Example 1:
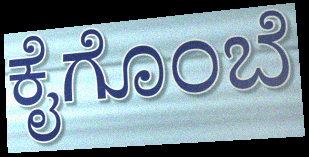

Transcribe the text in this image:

ಕೈಗೊಂಬೆ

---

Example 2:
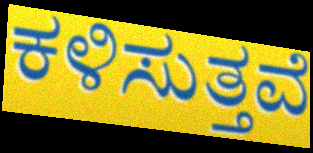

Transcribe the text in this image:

ಕಳಿಸುತ್ತವೆ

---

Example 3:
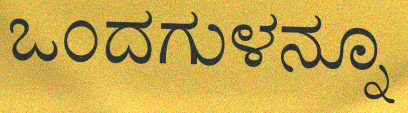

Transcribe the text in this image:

ಒಂದಗುಳನ್ನೂ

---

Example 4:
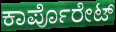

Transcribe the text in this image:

ಕಾರ್ಪೊರೇಟ್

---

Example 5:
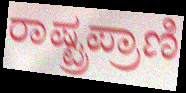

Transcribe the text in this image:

ರಾಷ್ಟ್ರಪ್ರಾಣಿ